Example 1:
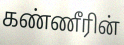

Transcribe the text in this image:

கண்ணீரின்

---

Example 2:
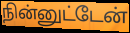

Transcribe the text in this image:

நின்னுட்டேன்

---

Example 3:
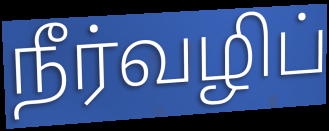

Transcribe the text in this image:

நீர்வழிப்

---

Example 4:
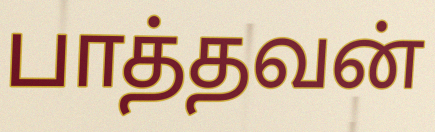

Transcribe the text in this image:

பாத்தவன்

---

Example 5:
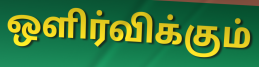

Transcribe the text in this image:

ஒளிர்விக்கும்